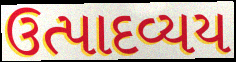
ઉત્પાદવ્યય